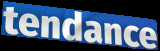
tendance